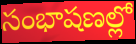
సంభాషణల్లో